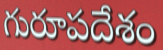
గురూపదేశం